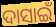
ଦାସାଇଁ